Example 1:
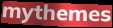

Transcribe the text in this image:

mythemes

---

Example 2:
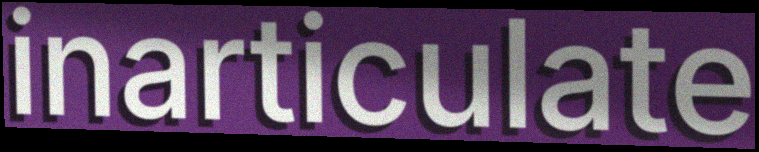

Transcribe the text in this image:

inarticulate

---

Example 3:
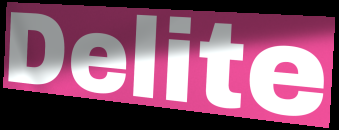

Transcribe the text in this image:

Delite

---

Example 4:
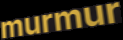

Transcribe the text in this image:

murmur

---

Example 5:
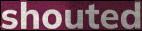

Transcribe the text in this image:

shouted